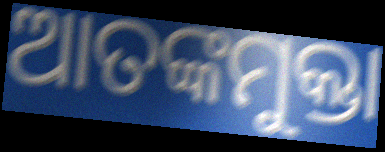
ଆତଙ୍କମୁକ୍ତା